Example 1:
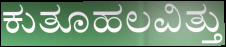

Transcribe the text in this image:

ಕುತೂಹಲವಿತ್ತು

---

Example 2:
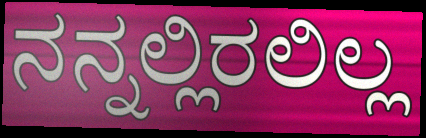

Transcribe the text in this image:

ನನ್ನಲ್ಲಿರಲಿಲ್ಲ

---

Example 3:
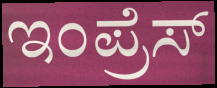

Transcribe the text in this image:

ಇಂಪ್ರೆಸ್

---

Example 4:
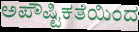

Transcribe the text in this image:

ಅಪೌಷ್ಟಿಕತೆಯಿಂದ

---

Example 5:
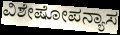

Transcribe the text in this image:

ವಿಶೇಷೋಪನ್ಯಾಸ